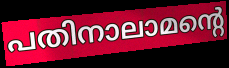
പതിനാലാമന്റെ